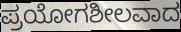
ಪ್ರಯೋಗಶೀಲವಾದ